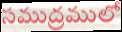
సముద్రములో